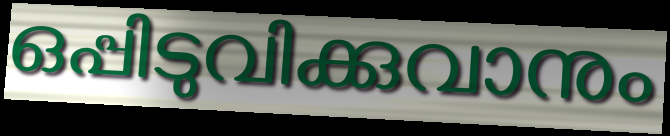
ഒപ്പിടുവിക്കുവാനും